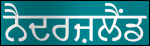
ਨੈਦਰਜ਼ਲੈਂਡ